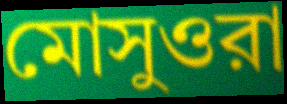
মোসুওরা